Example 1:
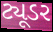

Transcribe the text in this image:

ટ્યૂડર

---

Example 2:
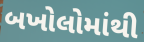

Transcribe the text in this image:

બખોલોમાંથી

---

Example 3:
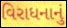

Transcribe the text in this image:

વિરાધનાનું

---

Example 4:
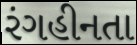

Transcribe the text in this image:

રંગહીનતા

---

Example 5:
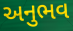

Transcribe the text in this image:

અનુભવ